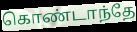
கொண்டாந்தே